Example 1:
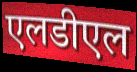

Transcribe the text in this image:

एलडीएल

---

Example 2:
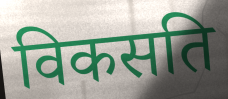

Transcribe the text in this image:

विकसति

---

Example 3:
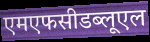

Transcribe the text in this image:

एमएफसीडब्‍लूएल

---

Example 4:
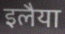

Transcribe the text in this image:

इलैया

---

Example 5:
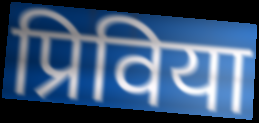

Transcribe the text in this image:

प्रिविया